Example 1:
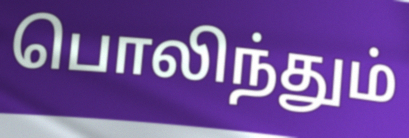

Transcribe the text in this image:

பொலிந்தும்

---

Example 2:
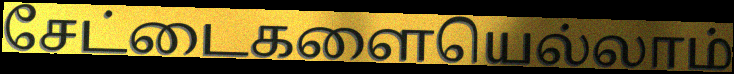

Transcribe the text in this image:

சேட்டைகளையெல்லாம்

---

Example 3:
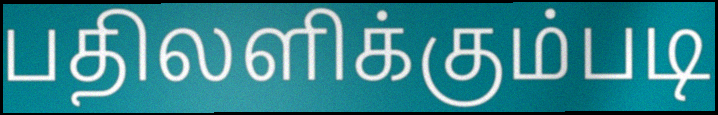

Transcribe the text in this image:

பதிலளிக்கும்படி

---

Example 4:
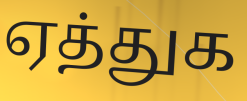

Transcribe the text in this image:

ஏத்துக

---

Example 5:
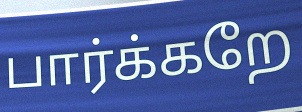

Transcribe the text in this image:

பார்க்கறே